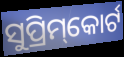
ସୁପ୍ରିମ୍‌କୋର୍ଟ